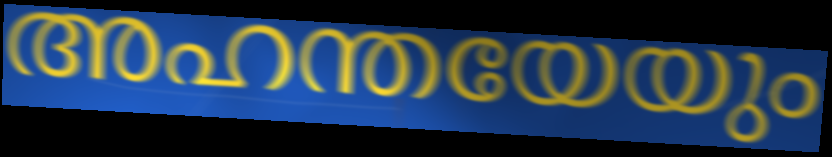
അഹന്തയേയും